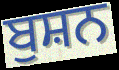
ਬੁਸ਼ਨ